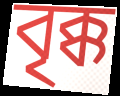
বৃক্ক